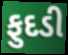
ફુદડી